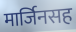
मार्जिनसह